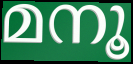
മനൂ